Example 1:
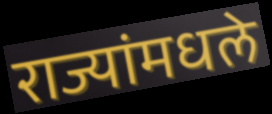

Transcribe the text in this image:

राज्यांमधले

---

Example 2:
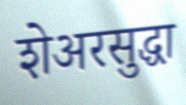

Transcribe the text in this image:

शेअरसुद्धा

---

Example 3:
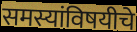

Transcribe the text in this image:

समस्यांविषयीचे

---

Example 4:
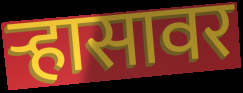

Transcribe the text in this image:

ऱ्हासावर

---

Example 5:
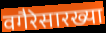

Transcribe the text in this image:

वगैरेसारख्या